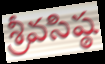
శ్రీవసిష్ఠ